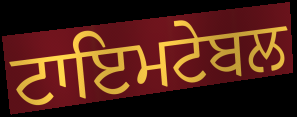
ਟਾਇਮਟੇਬਲ